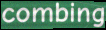
combing